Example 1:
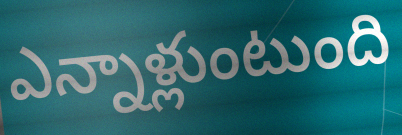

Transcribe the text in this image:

ఎన్నాళ్లుంటుంది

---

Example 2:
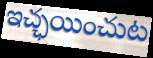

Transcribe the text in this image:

ఇచ్ఛయించుట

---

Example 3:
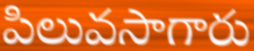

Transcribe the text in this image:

పిలువసాగారు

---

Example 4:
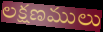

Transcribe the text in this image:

లక్షణములు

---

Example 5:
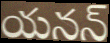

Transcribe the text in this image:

యనన్